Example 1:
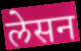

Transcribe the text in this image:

लेसन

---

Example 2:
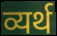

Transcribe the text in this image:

व्यर्थ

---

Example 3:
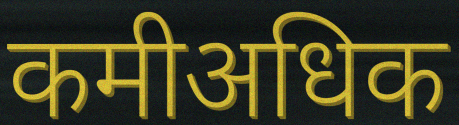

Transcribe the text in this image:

कमीअधिक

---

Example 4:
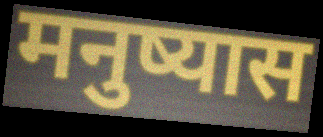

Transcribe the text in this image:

मनुष्यास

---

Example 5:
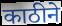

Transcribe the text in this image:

काठीने